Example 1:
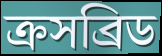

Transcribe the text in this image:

ক্রসব্রিড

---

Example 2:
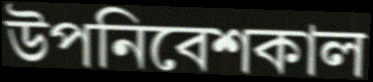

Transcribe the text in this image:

উপনিবেশকাল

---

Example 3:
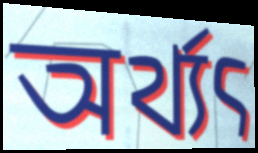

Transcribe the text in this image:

অর্থ্যৎ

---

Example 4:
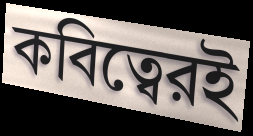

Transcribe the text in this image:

কবিত্বেরই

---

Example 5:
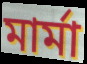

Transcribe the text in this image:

মার্মা